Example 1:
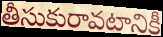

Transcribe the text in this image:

తీసుకురావటానికీ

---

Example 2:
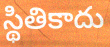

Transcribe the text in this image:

స్థితికాదు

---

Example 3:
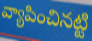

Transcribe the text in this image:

వ్యాపించినట్టి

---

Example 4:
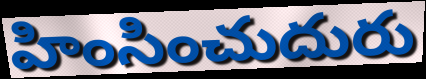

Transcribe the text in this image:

హింసించుదురు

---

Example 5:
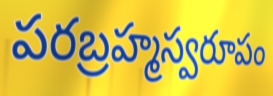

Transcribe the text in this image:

పరబ్రహ్మస్వరూపం